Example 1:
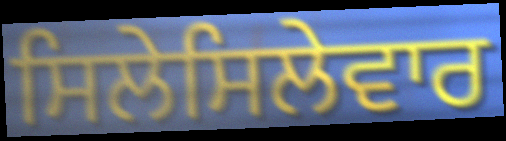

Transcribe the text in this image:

ਸਿਲੇਸਿਲੇਵਾਰ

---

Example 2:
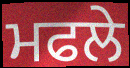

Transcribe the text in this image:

ਮਫਲੇ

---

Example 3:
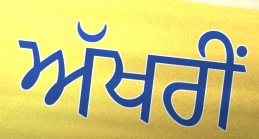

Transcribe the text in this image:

ਅੱਖਰੀਂ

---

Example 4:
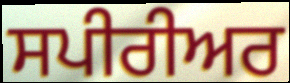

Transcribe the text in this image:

ਸਪੀਰੀਅਰ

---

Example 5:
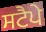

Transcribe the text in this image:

ਸਟੈਪੇ